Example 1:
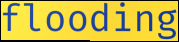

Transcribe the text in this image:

flooding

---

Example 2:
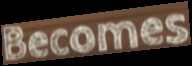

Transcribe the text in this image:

Becomes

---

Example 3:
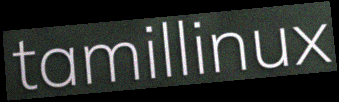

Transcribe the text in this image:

tamillinux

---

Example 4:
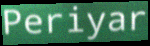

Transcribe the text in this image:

Periyar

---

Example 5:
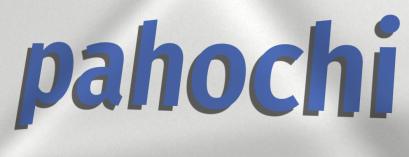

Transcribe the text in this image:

pahochi